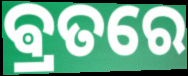
ଵ୍ରତରେ